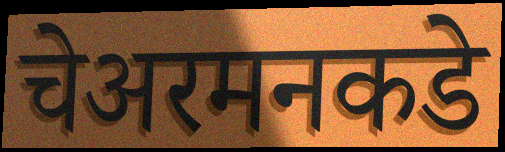
चेअरमनकडे